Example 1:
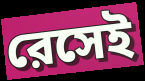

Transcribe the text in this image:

রেসেই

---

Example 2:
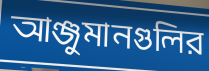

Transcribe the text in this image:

আঞ্জুমানগুলির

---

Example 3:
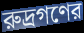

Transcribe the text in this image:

রুদ্রগণের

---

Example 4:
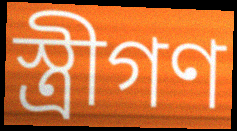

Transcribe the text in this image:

স্ত্রীগণ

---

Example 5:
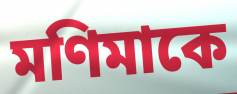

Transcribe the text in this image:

মণিমাকে